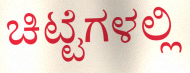
ಚಿಟ್ಟೆಗಳಲ್ಲಿ